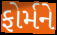
ફોર્મને